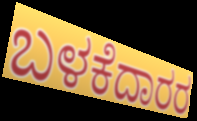
ಬಳಕೆದಾರರ